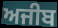
ਅਜੀਬ